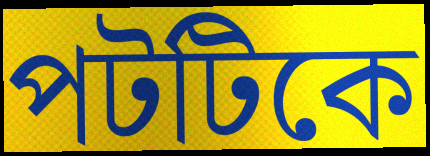
পটটিকে